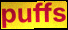
puffs